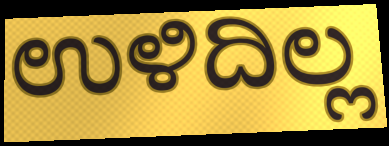
ಉಳಿದಿಲ್ಲ